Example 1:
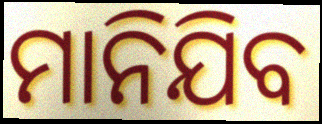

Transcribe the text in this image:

ମାନିଯିବ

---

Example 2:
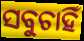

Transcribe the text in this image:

ସବୁଚାହିଁ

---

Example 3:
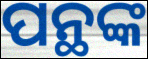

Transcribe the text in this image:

ପନ୍ଥଙ୍କ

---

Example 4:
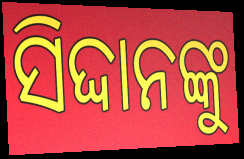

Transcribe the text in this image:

ସିଦ୍ଦାନଙ୍କୁ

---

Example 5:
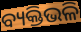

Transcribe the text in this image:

ବ୍ୟକ୍ତିଭଳି